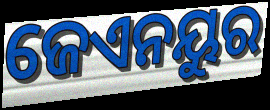
ଜେଏନୟୁର